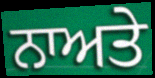
ਨਾਅਤੇ